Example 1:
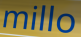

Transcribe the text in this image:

millo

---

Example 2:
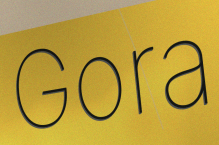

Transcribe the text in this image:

Gora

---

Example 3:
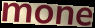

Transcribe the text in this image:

mone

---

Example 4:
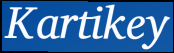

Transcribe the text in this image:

Kartikey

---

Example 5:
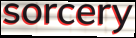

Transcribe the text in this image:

sorcery